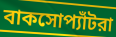
বাকসোপ্যাঁটরা